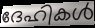
ദേഹികൾ